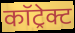
कॉट्रेक्ट